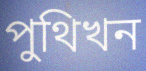
পুথিখন